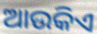
ଆଉକିଏ